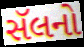
સૅલનો